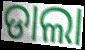
ଡାଲା